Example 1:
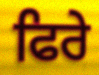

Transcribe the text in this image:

ਫਿਰੇ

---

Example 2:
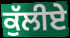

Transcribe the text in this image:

ਕੁੱਲੀਏ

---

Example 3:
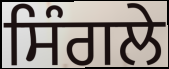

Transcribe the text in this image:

ਸਿੰਗਲੇ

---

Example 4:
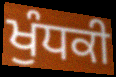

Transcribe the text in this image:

ਖੁੰਧਕੀ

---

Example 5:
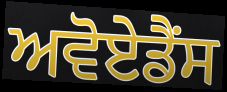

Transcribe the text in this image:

ਅਵੋਏਡੈਂਸ